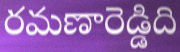
రమణారెడ్డిది